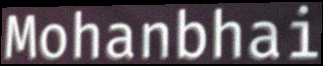
Mohanbhai